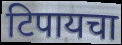
टिपायचा